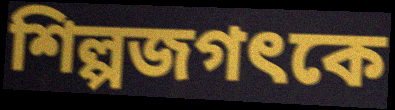
শিল্পজগৎকে